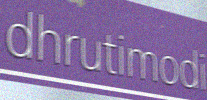
dhrutimodi